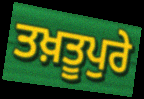
ਤਖ਼ਤੂਪੁਰੇ